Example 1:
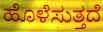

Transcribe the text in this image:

ಹೊಳೆಸುತ್ತದೆ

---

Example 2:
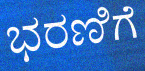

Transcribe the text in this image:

ಭರಣಿಗೆ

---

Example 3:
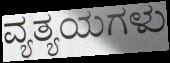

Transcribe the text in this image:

ವ್ಯತ್ಯಯಗಳು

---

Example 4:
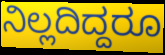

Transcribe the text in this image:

ನಿಲ್ಲದಿದ್ದರೂ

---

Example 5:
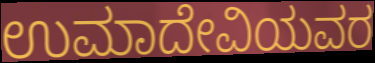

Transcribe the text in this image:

ಉಮಾದೇವಿಯವರ